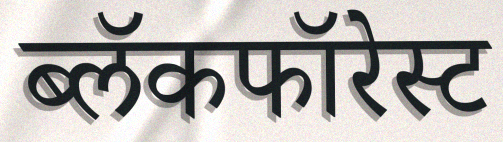
ब्लॅकफॉरेस्ट